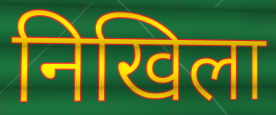
निखिला